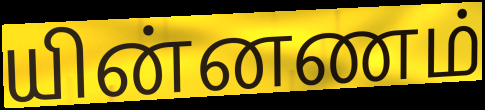
யின்னணம்